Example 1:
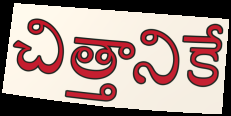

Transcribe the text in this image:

చిత్తానికే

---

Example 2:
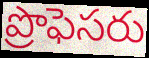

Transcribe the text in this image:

ప్రొఫెసరు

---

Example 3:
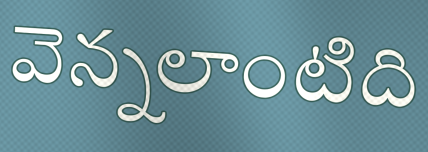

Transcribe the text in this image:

వెన్నలాంటిది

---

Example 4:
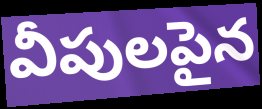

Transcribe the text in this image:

వీపులపైన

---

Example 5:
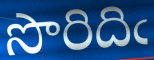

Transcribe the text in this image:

సొరిదిఁ